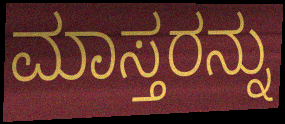
ಮಾಸ್ತರನ್ನು